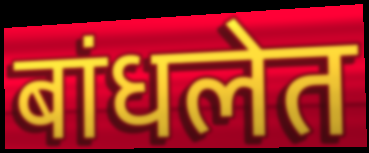
बांधलेत